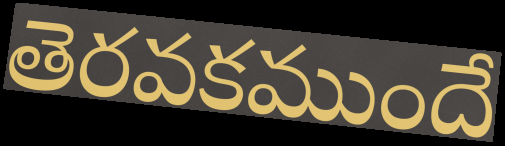
తెరవకముందే